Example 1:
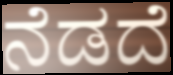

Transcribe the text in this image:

ನೆಡದೆ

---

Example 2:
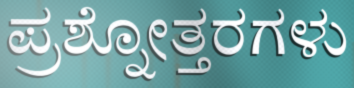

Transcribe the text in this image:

ಪ್ರಶ್ನೋತ್ತರಗಳು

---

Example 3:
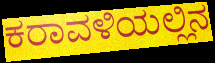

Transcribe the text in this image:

ಕರಾವಳಿಯಲ್ಲಿನ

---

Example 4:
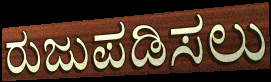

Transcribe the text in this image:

ರುಜುಪಡಿಸಲು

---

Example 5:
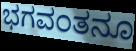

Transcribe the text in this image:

ಭಗವಂತನೂ